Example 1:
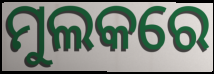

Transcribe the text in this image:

ମୁଲକରେ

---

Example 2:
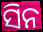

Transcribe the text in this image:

ସିନ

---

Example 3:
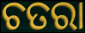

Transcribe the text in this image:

ଚତରା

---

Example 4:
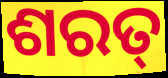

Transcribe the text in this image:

ଶରତ୍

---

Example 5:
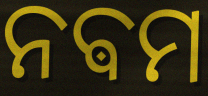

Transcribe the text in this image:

ନଵମ